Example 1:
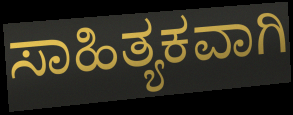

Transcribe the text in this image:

ಸಾಹಿತ್ಯಕವಾಗಿ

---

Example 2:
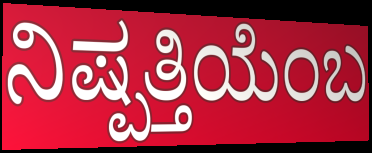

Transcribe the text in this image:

ನಿಷ್ಪತ್ತಿಯೆಂಬ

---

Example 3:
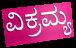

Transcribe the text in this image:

ವಿಕ್ರಮ್ಯ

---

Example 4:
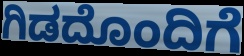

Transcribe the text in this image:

ಗಿಡದೊಂದಿಗೆ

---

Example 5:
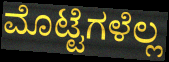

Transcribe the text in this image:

ಮೊಟ್ಟೆಗಳೆಲ್ಲ